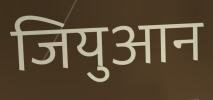
जियुआन